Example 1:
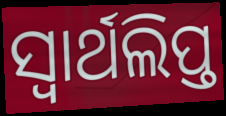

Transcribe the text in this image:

ସ୍ୱାର୍ଥଲିପ୍ତ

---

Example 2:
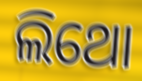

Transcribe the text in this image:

ଲିଥୋ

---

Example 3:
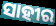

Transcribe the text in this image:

ସାହୀର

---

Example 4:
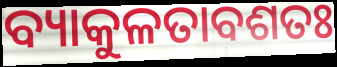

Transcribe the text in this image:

ବ୍ୟାକୁଳତାବଶତଃ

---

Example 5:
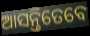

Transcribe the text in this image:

ଆସନ୍ତିତେବେ